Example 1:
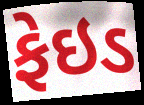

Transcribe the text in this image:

ફેઇડ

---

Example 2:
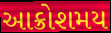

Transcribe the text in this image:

આક્રોશમય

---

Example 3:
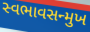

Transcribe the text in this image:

સ્વભાવસન્મુખ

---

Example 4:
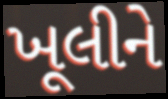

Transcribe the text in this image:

ખૂલીને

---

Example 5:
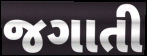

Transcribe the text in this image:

જગાતી